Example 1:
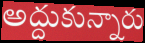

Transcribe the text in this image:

అద్దుకున్నారు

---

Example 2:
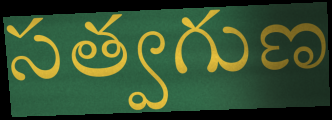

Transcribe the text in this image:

సత్వగుణ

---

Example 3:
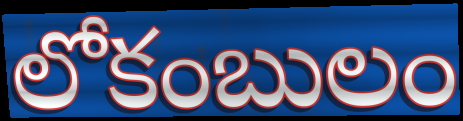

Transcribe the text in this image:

లోకంబులం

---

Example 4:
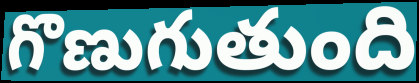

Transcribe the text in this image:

గొణుగుతుంది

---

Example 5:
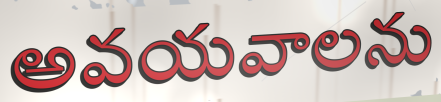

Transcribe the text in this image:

అవయవాలను